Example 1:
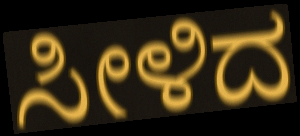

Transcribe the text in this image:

ಸೀಳಿದ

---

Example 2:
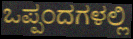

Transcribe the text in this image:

ಒಪ್ಪಂದಗಳಲ್ಲಿ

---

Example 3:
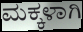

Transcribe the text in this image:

ಮಕ್ಕಳಾಗಿ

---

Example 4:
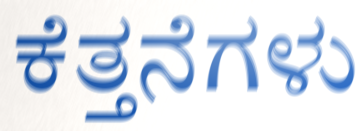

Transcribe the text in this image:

ಕೆತ್ತನೆಗಳು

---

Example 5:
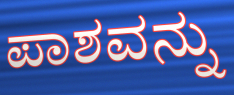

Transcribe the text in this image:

ಪಾಶವನ್ನು